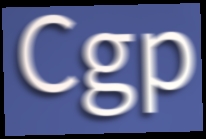
Cgp